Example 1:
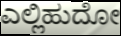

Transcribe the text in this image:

ಎಲ್ಲಿಹುದೋ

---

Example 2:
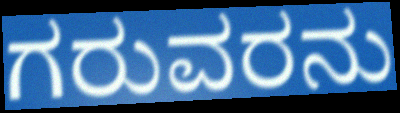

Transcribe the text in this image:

ಗರುವರನು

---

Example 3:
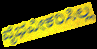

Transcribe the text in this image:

ವೈಭವೀಕರಿಸಿಲ್ಲ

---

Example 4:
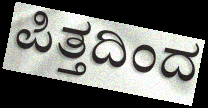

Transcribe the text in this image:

ಪಿತ್ತದಿಂದ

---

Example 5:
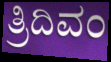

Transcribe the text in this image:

ತ್ರಿದಿವಂ